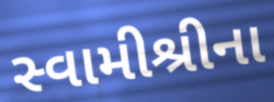
સ્વામીશ્રીના